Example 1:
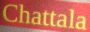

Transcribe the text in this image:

Chattala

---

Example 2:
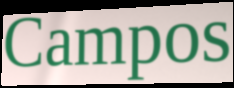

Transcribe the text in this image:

Campos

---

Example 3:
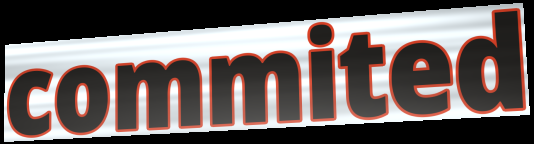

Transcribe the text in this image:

commited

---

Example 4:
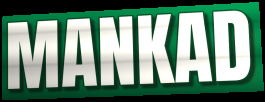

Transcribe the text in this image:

MANKAD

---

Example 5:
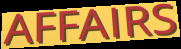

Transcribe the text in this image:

AFFAIRS